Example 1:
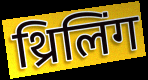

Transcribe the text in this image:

थ्रिलिंग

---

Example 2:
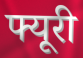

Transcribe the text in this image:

फ्यूरी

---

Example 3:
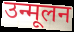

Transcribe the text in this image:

उन्‍मूलन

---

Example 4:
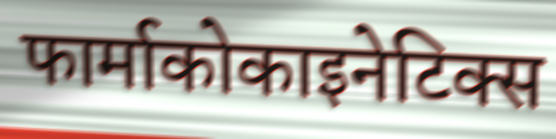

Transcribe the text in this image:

फार्माकोकाइनेटिक्स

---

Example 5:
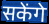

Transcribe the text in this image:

सकेंगे